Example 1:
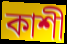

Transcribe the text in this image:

কাশী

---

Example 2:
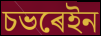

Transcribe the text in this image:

চভৰেইন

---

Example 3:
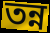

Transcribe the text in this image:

তন্ন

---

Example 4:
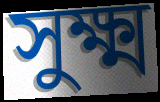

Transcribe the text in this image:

সুক্ষ্ম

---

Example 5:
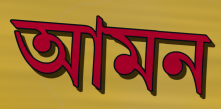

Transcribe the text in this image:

আমন